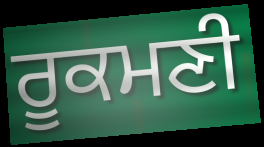
ਰੂਕਮਣੀ